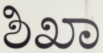
ಶಿಖಾ